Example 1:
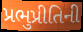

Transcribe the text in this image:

પ્રભુપ્રીતિની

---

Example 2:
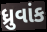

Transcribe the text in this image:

ધ્રુવાંક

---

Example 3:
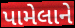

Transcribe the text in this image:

પામેલાને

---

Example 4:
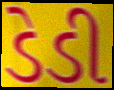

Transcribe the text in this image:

ડેડી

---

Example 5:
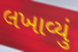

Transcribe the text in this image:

લખાવ્યું